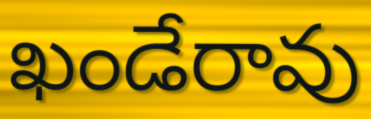
ఖండేరావు